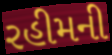
રહીમની